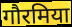
गौरमिया